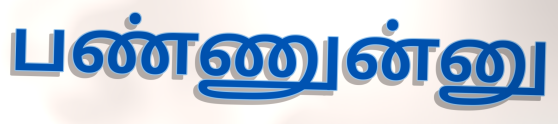
பண்ணுன்னு